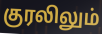
குரலிலும்